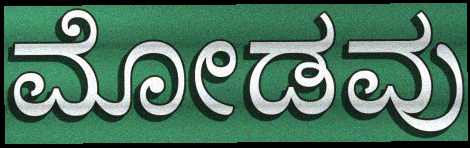
ಮೋಡವು